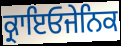
ਕ੍ਰਾਇਓਜੇਨਿਕ